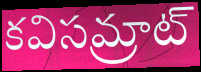
కవిసమ్రాట్